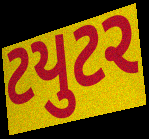
ટયુટર